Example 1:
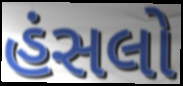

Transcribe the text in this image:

હંસલો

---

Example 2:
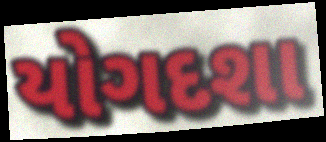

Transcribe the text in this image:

યોગદશા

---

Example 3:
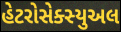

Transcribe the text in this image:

હેટરોસેક્સ્યુઅલ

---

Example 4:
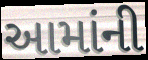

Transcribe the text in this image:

આમાંની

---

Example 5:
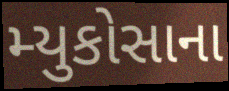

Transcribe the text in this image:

મ્યુકોસાના